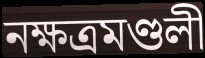
নক্ষত্রমণ্ডলী